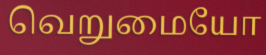
வெறுமையோ